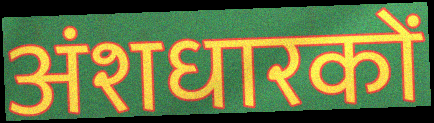
अंशधारकों